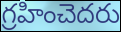
గ్రహించెదరు